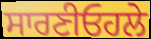
ਸਾਰਣੀਓਹਲੇ